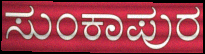
ಸುಂಕಾಪುರ